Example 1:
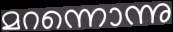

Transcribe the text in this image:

മറന്നൊന്നു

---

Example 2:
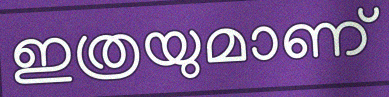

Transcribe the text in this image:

ഇത്രയുമാണ്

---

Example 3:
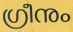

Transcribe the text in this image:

ഗ്രീനും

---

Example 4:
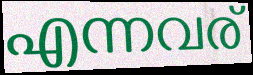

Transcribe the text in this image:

എന്നവര്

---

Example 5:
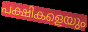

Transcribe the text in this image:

പക്ഷികളെയും